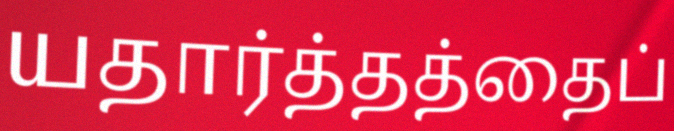
யதார்த்தத்தைப்